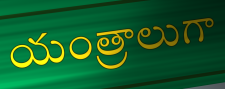
యంత్రాలుగా